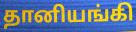
தானியங்கி